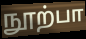
நூற்பா